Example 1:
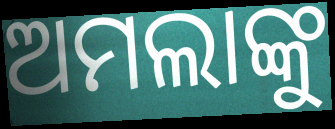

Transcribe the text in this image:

ଅମଲାଙ୍କୁ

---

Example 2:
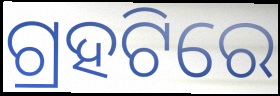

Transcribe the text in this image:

ଗ୍ରହଟିରେ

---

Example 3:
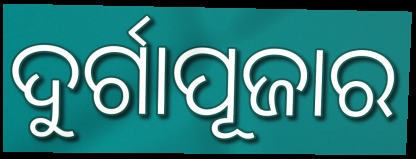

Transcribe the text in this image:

ଦୁର୍ଗାପୂଜାର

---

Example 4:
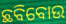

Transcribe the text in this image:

ଛବିବୋଉ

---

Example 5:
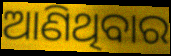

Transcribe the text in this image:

ଆଣିଥିବାର